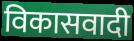
विकासवादी